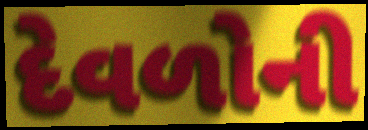
દેવળોની